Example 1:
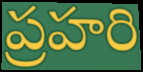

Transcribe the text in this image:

ప్రహరి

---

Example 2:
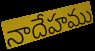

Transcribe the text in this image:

నాదేహము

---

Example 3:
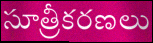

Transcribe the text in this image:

సూత్రీకరణలు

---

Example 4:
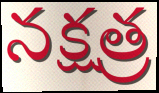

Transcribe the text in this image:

నక్షత్ర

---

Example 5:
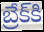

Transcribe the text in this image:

బ్రేక్‌కి